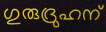
ഗുരുദ്രുഹന്